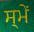
ਸ੍ਮੇਂ